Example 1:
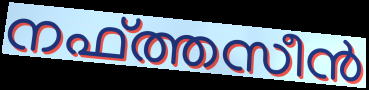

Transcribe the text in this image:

നഫ്ത്തസീൻ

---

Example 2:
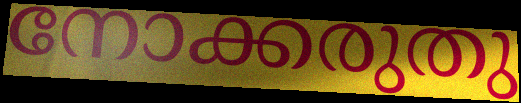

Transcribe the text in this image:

നോക്കരുതു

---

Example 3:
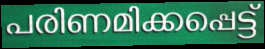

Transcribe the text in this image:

പരിണമിക്കപ്പെട്ട്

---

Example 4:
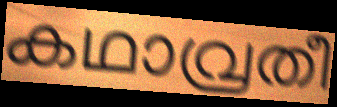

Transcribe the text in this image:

കഥാവ്രതീ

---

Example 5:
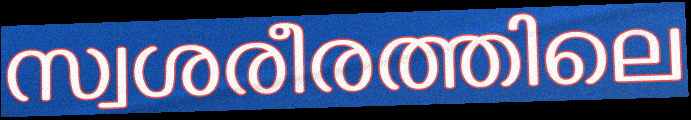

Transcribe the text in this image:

സ്വശരീരത്തിലെ